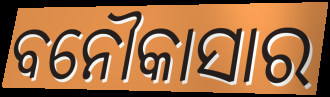
ବନୌକାସାର